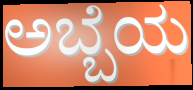
ಅಬ್ಬೆಯ